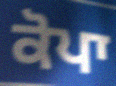
ਕੋਪਾ